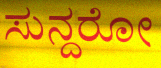
ಸುನ್ದರೋ